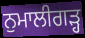
ਨੁਮਾਲੀਗੜ੍ਹ